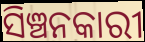
ସିଞ୍ଚନକାରୀ